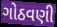
ગોઠવણી